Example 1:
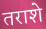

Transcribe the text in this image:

तराशे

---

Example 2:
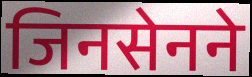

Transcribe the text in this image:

जिनसेनने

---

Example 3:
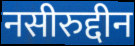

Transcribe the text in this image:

नसीरुद्दीन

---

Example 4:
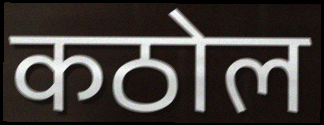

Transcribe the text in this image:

कठोल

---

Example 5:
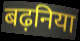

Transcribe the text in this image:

बढ़निया